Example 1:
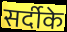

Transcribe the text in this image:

सर्दीके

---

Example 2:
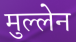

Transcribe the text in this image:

मुल्लेन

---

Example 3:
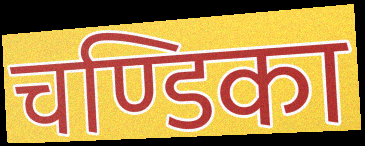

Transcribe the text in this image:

चण्डिका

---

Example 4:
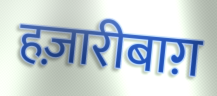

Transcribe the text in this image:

हज़ारीबाग़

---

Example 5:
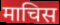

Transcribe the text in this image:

माचिस